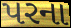
પરના